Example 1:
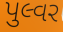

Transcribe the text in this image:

પુલ્વર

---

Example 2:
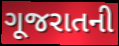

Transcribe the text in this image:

ગૂજરાતની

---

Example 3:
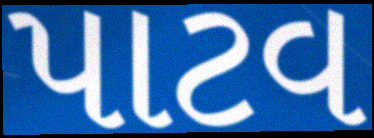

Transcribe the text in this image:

પાટવ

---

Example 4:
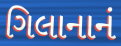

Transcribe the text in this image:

ગિલાનાનં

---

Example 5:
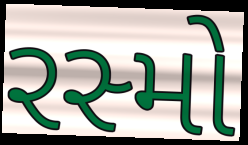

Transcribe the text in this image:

રસ્મો